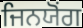
ਜਿਨਯੋਂਗ